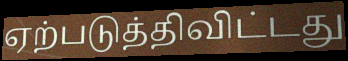
ஏற்படுத்திவிட்டது